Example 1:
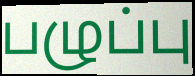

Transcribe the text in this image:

பழுப்பு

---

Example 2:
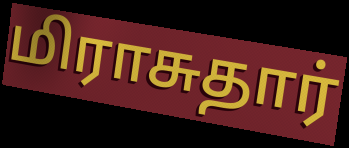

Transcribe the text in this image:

மிராசுதார்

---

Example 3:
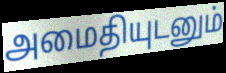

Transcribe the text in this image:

அமைதியுடனும்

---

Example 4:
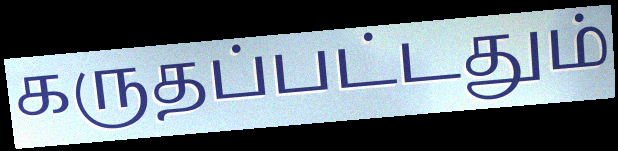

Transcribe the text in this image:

கருதப்பட்டதும்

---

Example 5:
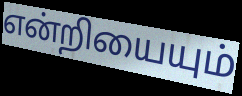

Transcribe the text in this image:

என்றியையும்